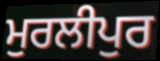
ਮੁਰਲੀਪੁਰ